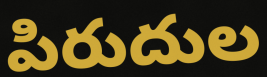
పిరుదుల